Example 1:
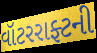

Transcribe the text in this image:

વૉટરરાફ્ટની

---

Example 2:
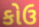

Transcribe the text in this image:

કોઉ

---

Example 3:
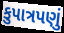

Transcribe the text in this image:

કુપાત્રપણું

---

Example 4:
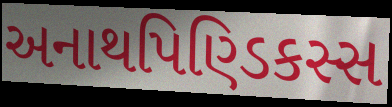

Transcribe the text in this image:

અનાથપિણ્ડિકસ્સ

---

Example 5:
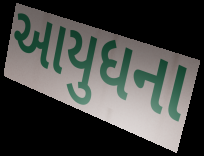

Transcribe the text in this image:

આયુધના